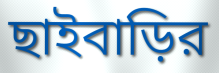
ছাইবাড়ির